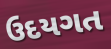
ઉદયગત